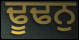
ਢੂਢਨੁ